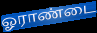
ஓராண்டை